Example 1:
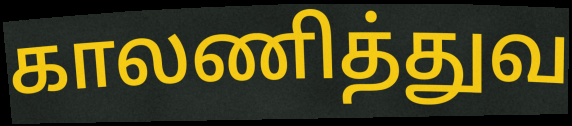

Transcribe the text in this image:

காலணித்துவ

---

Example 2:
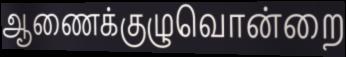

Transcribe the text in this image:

ஆணைக்குழுவொன்றை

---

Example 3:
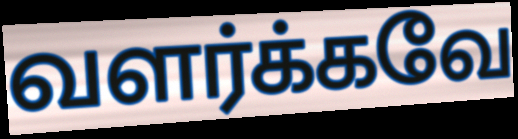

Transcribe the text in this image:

வளர்க்கவே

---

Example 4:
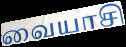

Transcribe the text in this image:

வையாசி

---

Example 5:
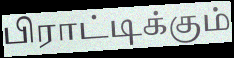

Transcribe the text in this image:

பிராட்டிக்கும்